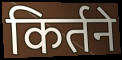
किर्तने